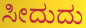
ಸೀದುದು